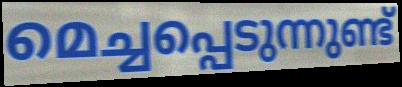
മെച്ചപ്പെടുന്നുണ്ട്